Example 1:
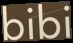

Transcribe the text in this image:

bibi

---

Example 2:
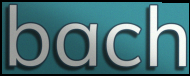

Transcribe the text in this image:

bach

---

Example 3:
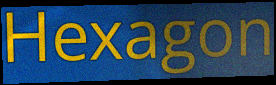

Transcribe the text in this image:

Hexagon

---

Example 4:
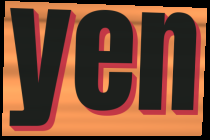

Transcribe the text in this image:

yen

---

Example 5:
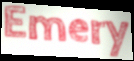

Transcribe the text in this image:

Emery